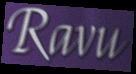
Ravu